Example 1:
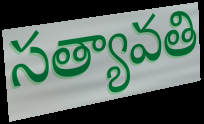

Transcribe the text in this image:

సత్యావతి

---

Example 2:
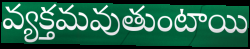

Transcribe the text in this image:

వ్యక్తమవుతుంటాయి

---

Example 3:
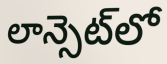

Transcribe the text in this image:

లాన్సెట్‌లో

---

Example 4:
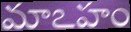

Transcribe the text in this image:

మాఽహం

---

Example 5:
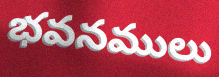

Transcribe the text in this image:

భవనములు